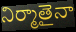
నిర్మాతైనా